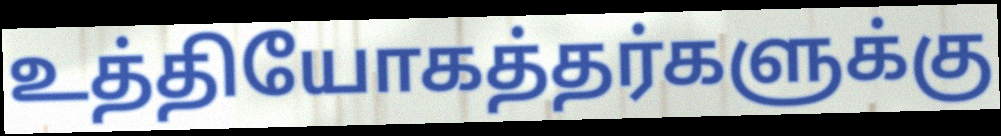
உத்தியோகத்தர்களுக்கு